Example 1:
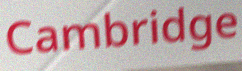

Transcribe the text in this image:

Cambridge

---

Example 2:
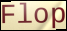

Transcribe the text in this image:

Flop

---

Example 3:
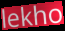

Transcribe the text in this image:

lekho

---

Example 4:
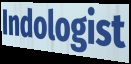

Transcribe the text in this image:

Indologist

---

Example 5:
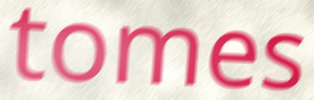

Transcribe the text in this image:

tomes